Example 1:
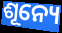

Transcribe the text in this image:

ଶୂନ୍ୟେ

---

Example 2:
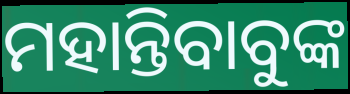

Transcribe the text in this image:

ମହାନ୍ତିବାବୁଙ୍କ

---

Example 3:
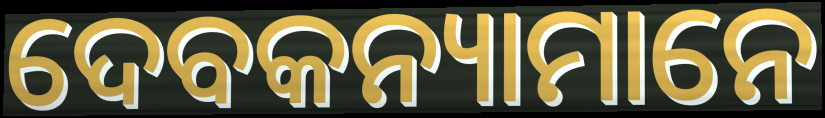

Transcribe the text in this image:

ଦେବକନ୍ୟାମାନେ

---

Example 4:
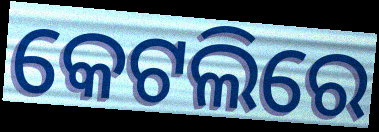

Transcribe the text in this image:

କେଟଲିରେ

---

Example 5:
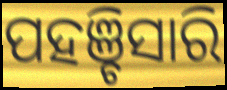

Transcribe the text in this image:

ପହଞ୍ଚିସାରି